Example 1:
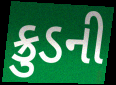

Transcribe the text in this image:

ક્રુડની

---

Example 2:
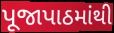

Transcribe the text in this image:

પૂજાપાઠમાંથી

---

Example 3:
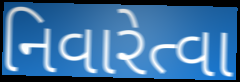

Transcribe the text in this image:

નિવારેત્વા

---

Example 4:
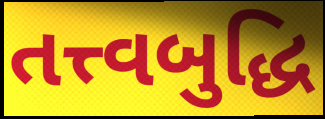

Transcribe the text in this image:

તત્ત્વબુદ્ધિ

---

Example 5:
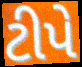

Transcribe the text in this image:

ટીપે